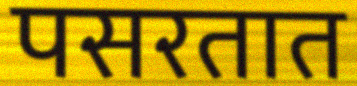
पसरतात